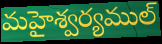
మహైశ్వర్యముల్